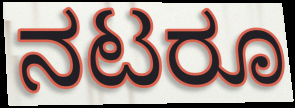
ನಟರೂ